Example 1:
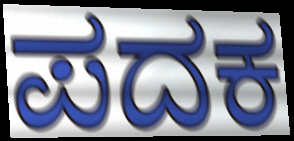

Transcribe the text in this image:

ಪದಕ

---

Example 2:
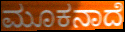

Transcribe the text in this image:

ಮೂಕನಾದೆ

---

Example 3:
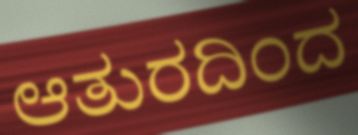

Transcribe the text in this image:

ಆತುರದಿಂದ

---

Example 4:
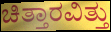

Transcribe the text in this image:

ಚಿತ್ತಾರವಿತ್ತು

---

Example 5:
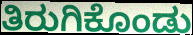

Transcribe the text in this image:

ತಿರುಗಿಕೊಂಡು